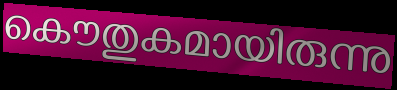
കൌതുകമായിരുന്നു